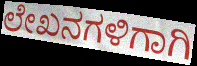
ಲೇಖನಗಳಿಗಾಗಿ